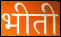
भीती